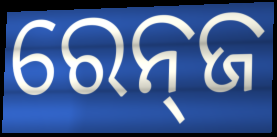
ରେନ୍‍ଜ